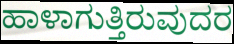
ಹಾಳಾಗುತ್ತಿರುವುದರ